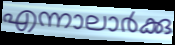
എന്നാലാർക്കു